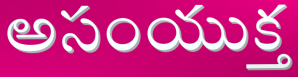
అసంయుక్త